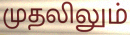
முதலிலும்